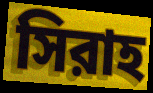
সিরাহ